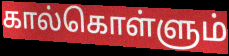
கால்கொள்ளும்